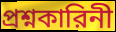
প্রশ্নকারিনী